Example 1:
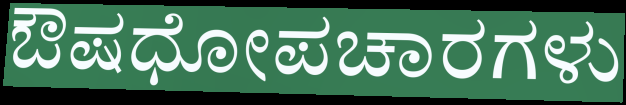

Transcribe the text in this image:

ಔಷಧೋಪಚಾರಗಳು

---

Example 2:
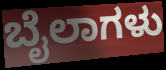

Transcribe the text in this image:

ಬೈಲಾಗಳು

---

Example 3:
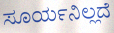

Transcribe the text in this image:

ಸೂರ್ಯನಿಲ್ಲದೆ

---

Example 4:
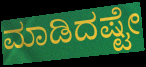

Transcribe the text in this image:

ಮಾಡಿದಷ್ಟೇ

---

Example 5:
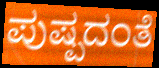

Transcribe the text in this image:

ಪುಷ್ಪದಂತೆ